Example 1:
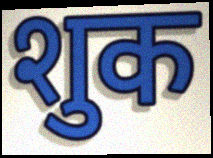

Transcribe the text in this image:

शुक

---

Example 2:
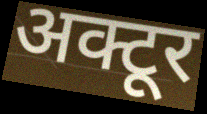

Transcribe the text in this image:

अक्टूर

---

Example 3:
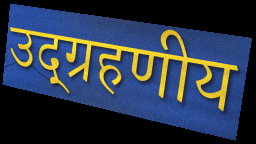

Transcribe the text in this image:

उद्ग्रहणीय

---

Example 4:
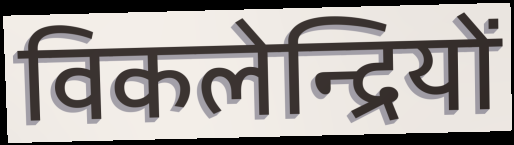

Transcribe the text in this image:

विकलेन्द्रियों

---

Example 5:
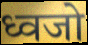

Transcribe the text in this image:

ध्वजो